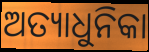
ଅତ୍ୟାଧୁନିକା